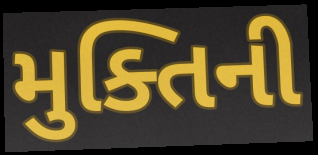
મુક્તિની